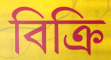
বিক্ৰি